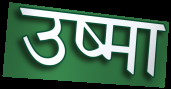
उष्मा